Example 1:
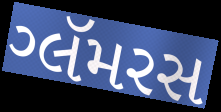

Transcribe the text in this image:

ગ્લૅમરસ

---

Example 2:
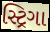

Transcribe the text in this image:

સ્ટ્રિગા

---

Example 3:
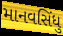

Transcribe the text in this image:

માનવસિંધુ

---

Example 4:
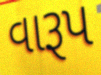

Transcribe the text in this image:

વારૂપ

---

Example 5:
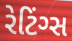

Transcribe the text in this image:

રેટિંગ્સ